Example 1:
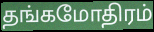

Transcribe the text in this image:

தங்கமோதிரம்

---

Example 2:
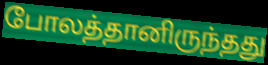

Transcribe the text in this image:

போலத்தானிருந்தது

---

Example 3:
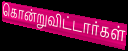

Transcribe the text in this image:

கொன்றுவிட்டார்கள்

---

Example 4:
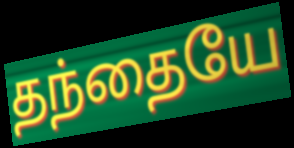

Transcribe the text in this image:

தந்தையே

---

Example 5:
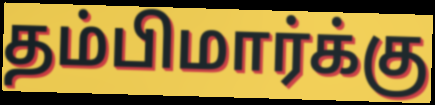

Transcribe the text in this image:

தம்பிமார்க்கு